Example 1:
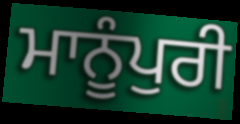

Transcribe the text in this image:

ਮਾਨੂੰਪੁਰੀ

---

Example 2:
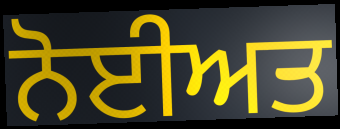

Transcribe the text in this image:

ਨੋਈਅਤ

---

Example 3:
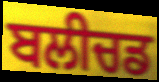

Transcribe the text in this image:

ਬਲੀਚਡ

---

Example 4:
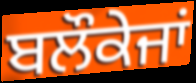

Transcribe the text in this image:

ਬਲੌਕੇਜਾਂ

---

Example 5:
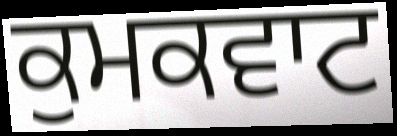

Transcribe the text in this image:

ਕੁਮਕਵਾਟ